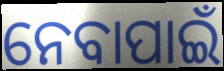
ନେବାପାଇଁ